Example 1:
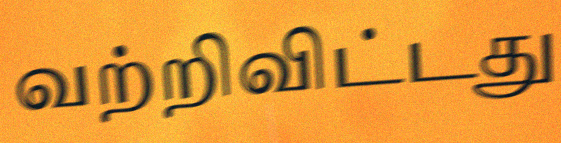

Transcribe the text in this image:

வற்றிவிட்டது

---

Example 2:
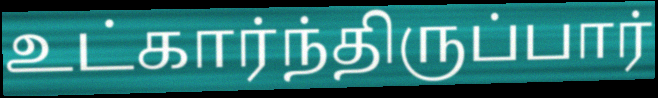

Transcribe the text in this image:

உட்கார்ந்திருப்பார்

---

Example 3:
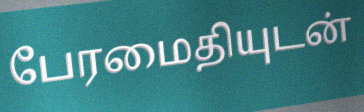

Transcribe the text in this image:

பேரமைதியுடன்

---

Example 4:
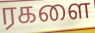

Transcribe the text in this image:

ரகளை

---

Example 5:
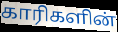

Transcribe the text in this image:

காரிகளின்